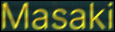
Masaki